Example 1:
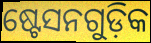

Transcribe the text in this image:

ଷ୍ଟେସନଗୁଡ଼ିକ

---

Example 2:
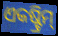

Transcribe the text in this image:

ଏକଷ୍ଟ୍ରିମ୍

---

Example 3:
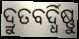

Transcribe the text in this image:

ଦ୍ରୁତବର୍ଦ୍ଧିଷ୍ଣୁ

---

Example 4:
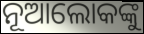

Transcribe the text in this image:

ନୂଆଲୋକଙ୍କୁ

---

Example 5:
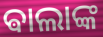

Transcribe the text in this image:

ଵାଲାଙ୍କ